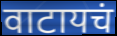
वाटायचं